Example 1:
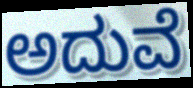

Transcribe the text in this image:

ಅದುವೆ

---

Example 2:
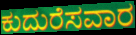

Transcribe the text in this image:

ಕುದುರೆಸವಾರ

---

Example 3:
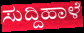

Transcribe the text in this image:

ಸುದ್ದಿಹಾಳೆ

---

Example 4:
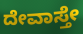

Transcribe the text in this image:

ದೇವಾಸ್ತೇ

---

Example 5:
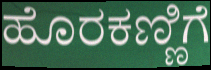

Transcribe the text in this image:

ಹೊರಕಣ್ಣಿಗೆ